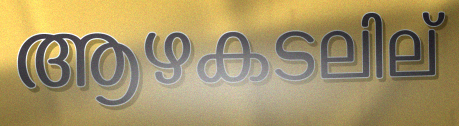
ആഴകടലില്